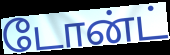
டோன்ட்